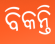
ବିକନ୍ତି